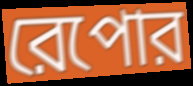
রেপোর